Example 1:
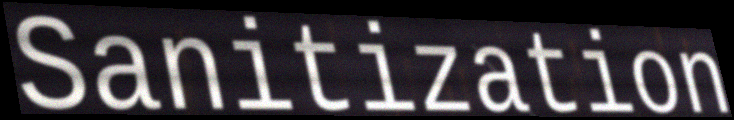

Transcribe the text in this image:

Sanitization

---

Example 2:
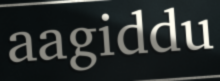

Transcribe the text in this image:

aagiddu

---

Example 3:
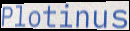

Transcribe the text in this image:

Plotinus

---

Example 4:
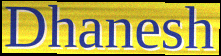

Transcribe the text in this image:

Dhanesh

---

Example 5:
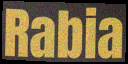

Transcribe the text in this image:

Rabia